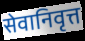
सेवानिवृत्त